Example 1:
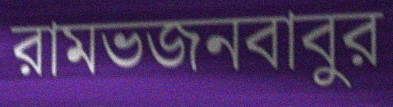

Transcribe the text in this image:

রামভজনবাবুর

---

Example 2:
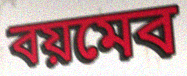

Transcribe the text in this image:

বয়মেব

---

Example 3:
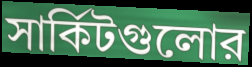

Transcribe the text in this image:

সার্কিটগুলোর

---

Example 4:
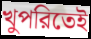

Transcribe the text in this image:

খুপরিতেই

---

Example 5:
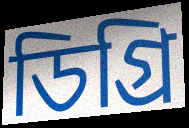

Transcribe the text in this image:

ডিগ্রি